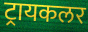
ट्रायकलर